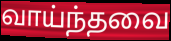
வாய்ந்தவை